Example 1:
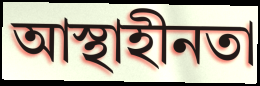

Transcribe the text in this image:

আস্থাহীনতা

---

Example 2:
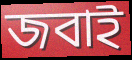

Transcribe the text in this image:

জবাই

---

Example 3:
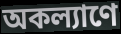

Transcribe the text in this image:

অকল্যাণে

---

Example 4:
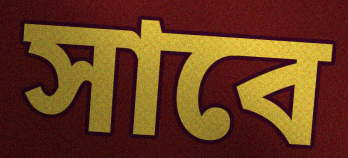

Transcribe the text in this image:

সাবে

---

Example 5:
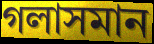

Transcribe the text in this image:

গলাসমান